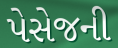
પેસેજની